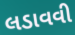
લડાવવી